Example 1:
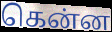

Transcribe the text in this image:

கென்ன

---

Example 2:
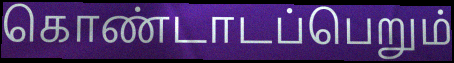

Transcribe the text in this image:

கொண்டாடப்பெறும்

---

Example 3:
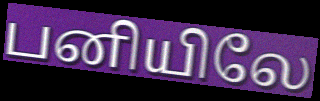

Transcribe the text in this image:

பனியிலே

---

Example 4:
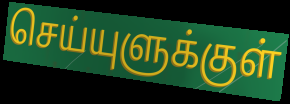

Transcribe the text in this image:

செய்யுளுக்குள்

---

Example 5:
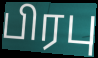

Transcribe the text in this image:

பிரபு